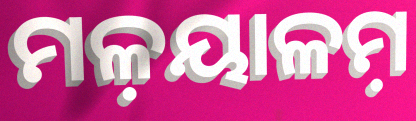
ମଳ଼ୟାଳମ଼